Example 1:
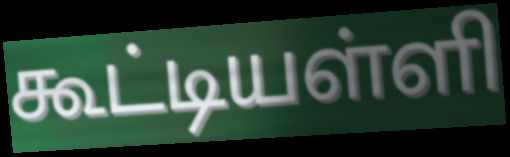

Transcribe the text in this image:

கூட்டியள்ளி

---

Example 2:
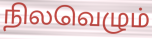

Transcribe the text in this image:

நிலவெழும்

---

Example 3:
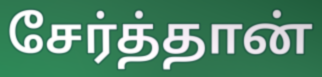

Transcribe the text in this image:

சேர்த்தான்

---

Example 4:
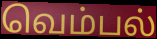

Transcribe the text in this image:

வெம்பல்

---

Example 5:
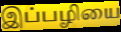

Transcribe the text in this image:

இப்பழியை